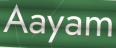
Aayam